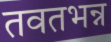
तवतभन्न